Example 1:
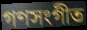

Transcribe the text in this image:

গণসংগীত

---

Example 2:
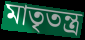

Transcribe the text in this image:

মাতৃতন্ত্র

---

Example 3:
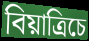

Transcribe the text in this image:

বিয়াত্রিচে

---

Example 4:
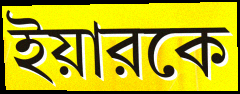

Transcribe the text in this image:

ইয়ারকে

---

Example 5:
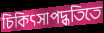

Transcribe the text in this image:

চিকিৎসাপদ্ধতিতে